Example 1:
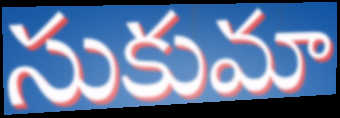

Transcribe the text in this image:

సుకుమా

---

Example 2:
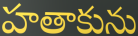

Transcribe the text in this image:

హతాకును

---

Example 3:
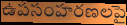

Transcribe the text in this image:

ఉపసంహరణలపై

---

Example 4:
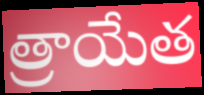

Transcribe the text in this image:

త్రాయేత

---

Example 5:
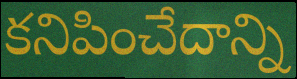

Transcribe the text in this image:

కనిపించేదాన్ని